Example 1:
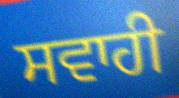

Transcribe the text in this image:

ਸਵਾਹੀ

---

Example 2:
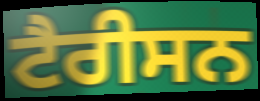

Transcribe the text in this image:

ਟੈਰੀਸਨ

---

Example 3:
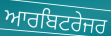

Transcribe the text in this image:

ਆਰਬਿਟਰੇਜਰ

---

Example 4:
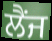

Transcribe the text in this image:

ਲੈਂਜ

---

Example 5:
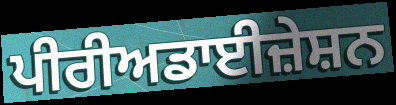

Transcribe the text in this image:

ਪੀਰੀਅਡਾਈਜ਼ੇਸ਼ਨ